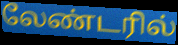
லேண்டரில்